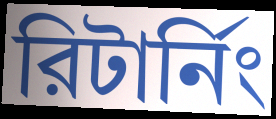
রিটার্নিং